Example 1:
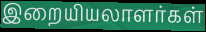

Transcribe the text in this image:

இறையியலாளர்கள்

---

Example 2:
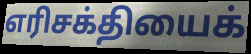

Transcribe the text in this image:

எரிசக்தியைக்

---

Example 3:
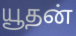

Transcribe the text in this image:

யூதன்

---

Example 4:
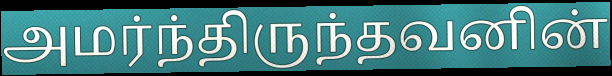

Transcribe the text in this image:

அமர்ந்திருந்தவனின்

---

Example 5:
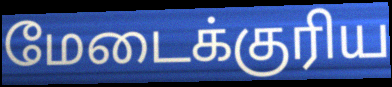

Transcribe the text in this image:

மேடைக்குரிய